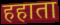
हहाता